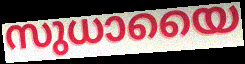
സുധായൈ